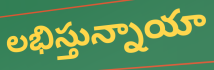
లభిస్తున్నాయా